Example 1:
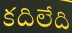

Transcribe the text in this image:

కదిలేది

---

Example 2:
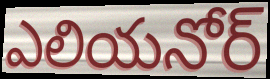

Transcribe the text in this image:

ఎలియనోర్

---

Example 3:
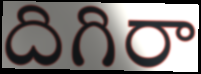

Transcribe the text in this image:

దిగిరా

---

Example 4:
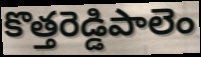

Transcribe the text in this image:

కొత్తరెడ్డిపాలెం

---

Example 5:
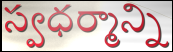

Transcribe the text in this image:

స్వధర్మాన్ని